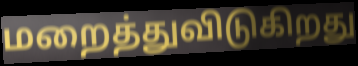
மறைத்துவிடுகிறது